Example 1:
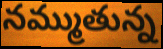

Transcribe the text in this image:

నమ్ముతున్న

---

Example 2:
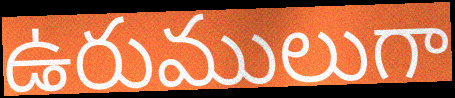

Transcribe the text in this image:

ఉరుములుగా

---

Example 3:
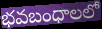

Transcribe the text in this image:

భవబంధాలలో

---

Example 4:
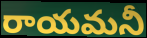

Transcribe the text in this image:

రాయమనీ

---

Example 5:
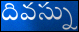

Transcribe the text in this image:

దివస్ను